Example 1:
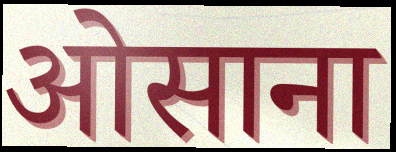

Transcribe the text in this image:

ओसाना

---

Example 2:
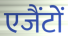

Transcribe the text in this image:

एजैंटों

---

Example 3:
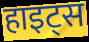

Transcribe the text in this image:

हाइट्स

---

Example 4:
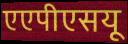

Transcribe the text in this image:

एएपीएसयू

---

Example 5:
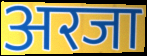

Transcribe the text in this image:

अरजा